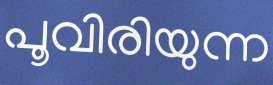
പൂവിരിയുന്ന